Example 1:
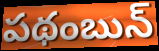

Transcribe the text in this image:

పథంబున్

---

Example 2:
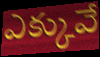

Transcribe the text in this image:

ఎక్కువే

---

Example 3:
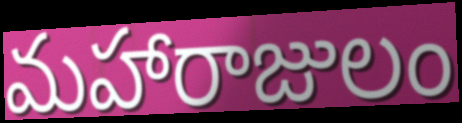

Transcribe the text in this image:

మహారాజులం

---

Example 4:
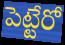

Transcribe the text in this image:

పెట్టేరో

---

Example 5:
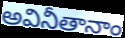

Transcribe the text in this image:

అవినీతానాం